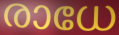
രാധേ